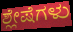
ಶ್ಲೇಷೆಗಳು